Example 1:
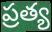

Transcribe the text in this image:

ప్రత్య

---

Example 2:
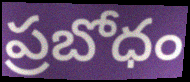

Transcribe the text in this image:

ప్రబోధం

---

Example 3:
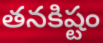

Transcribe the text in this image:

తనకిష్టం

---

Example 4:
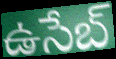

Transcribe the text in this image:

ఉసేబ్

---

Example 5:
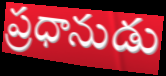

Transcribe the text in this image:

ప్రధానుడు